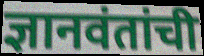
ज्ञानवंतांची